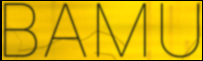
BAMU